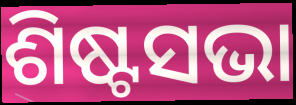
ଶିଷ୍ଟସଭା